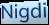
Nigdi